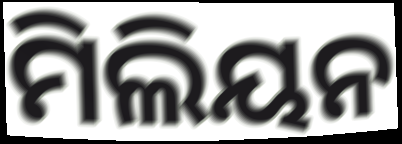
ମିଲିୟନ